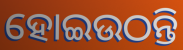
ହୋଇଉଠନ୍ତି